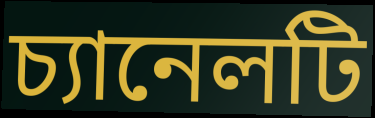
চ্যানেলটি